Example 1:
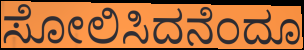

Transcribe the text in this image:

ಸೋಲಿಸಿದನೆಂದೂ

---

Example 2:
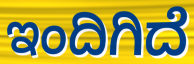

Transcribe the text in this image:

ಇಂದಿಗಿದೆ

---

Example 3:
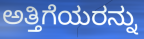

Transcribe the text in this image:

ಅತ್ತಿಗೆಯರನ್ನು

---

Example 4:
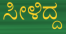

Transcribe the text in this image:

ಸೀಳಿದ್ದ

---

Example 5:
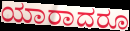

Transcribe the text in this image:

ಯಾರಾದರೂ